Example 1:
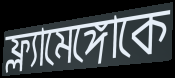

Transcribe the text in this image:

ফ্ল্যামেঙ্গোকে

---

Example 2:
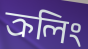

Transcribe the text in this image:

ক্রলিং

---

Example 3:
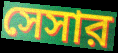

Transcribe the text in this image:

সেসার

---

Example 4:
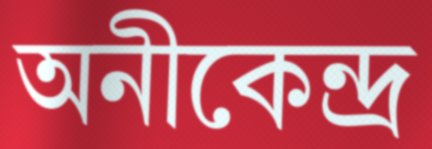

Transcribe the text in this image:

অনীকেন্দ্র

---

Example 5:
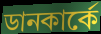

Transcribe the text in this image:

ডানকার্কে